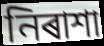
নিৰাশা